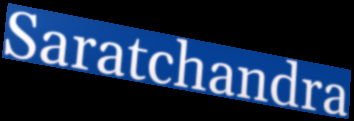
Saratchandra